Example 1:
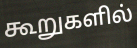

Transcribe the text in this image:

கூறுகளில்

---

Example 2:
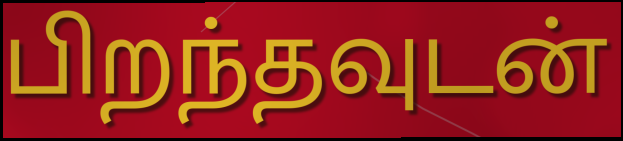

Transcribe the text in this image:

பிறந்தவுடன்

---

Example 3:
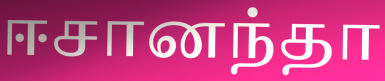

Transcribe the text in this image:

ஈசானந்தா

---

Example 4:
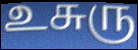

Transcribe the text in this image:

உசுரு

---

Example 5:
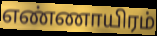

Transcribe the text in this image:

எண்ணாயிரம்